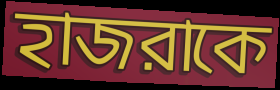
হাজরাকে